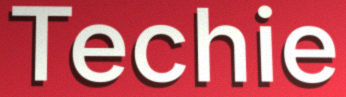
Techie